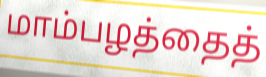
மாம்பழத்தைத்